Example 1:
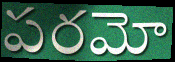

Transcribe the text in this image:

పరమో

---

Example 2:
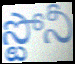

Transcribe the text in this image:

స్టోనీ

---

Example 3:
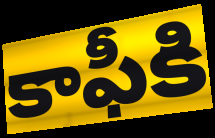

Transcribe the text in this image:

కాఫీకి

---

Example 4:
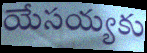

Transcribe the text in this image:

యేసయ్యకు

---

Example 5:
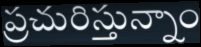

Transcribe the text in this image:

ప్రచురిస్తున్నాం